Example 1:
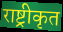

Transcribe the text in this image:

राष्ट्रीकृत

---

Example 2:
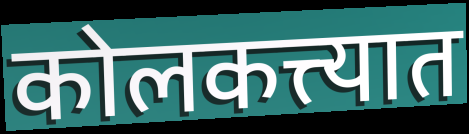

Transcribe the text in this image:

कोलकत्त्यात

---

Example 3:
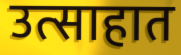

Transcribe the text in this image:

उत्साहात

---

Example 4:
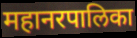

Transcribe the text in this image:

महानरपालिका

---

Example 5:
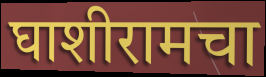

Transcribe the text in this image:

घाशीरामचा